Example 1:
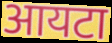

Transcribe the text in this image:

आयटा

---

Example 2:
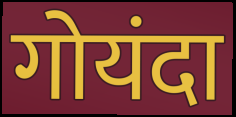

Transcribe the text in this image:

गोयंदा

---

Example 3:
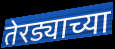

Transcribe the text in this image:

तेरड्याच्या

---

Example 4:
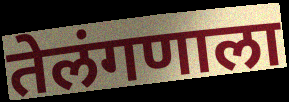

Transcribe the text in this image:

तेलंगणाला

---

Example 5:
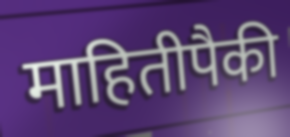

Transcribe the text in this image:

माहितीपैकी